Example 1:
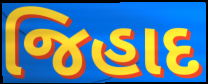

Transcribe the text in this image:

જિહાદ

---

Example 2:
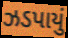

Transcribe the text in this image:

ઝડપાયું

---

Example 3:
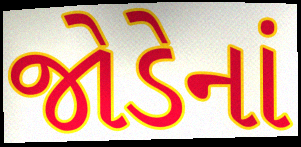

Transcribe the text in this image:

જોડેનાં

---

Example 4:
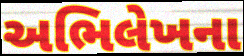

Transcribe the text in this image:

અભિલેખના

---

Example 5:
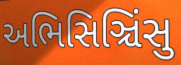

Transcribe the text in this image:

અભિસિઞ્ચિંસુ